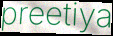
preetiya